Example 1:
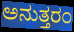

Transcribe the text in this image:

ಅನುತ್ತರಂ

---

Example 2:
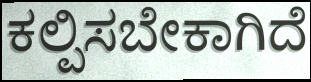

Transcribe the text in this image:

ಕಲ್ಪಿಸಬೇಕಾಗಿದೆ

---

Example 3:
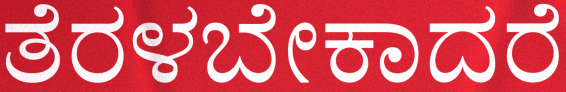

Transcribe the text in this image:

ತೆರಳಬೇಕಾದರೆ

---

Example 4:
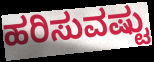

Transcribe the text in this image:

ಹರಿಸುವಷ್ಟು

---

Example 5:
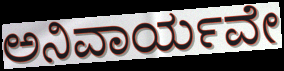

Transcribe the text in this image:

ಅನಿವಾರ್ಯವೇ